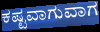
ಕಷ್ಟವಾಗುವಾಗ